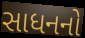
સાધનનો